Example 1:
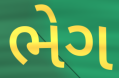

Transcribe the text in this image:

ભેગ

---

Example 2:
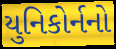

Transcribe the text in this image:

યુનિકોર્નનો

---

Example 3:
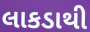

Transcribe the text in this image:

લાકડાથી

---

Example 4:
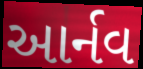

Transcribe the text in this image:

આર્નવ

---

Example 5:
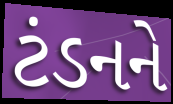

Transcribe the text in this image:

ટંડનને